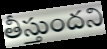
తీస్తుందని